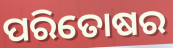
ପରିତୋଷର